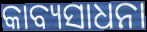
କାବ୍ୟସାଧନା